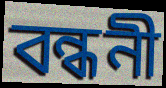
বন্ধনী